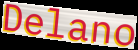
Delano